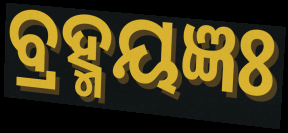
ବ୍ରହ୍ମୟଜ୍ଞଃ